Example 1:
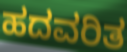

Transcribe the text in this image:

ಹದವರಿತ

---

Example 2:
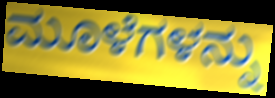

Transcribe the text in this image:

ಮೂಳೆಗಳನ್ನು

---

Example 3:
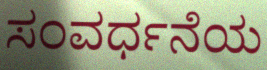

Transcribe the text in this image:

ಸಂವರ್ಧನೆಯ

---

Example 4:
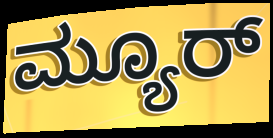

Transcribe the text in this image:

ಮ್ಯೂರ್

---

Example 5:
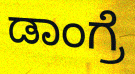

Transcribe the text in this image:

ಡಾಂಗ್ರೆ